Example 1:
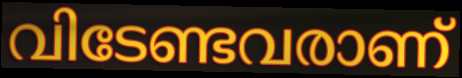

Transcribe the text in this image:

വിടേണ്ടവരാണ്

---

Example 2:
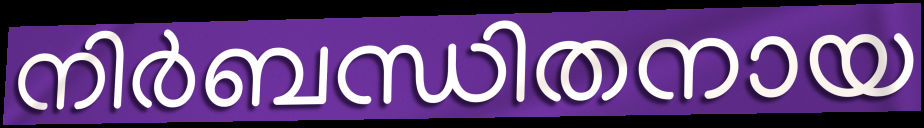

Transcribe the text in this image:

നിർബന്ധിതനായ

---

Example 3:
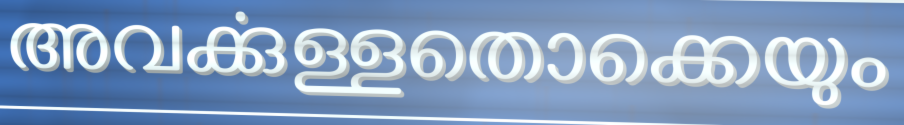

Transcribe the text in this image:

അവൎക്കുള്ളതൊക്കെയും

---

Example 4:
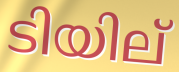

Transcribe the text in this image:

ടിയില്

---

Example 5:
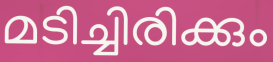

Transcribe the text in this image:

മടിച്ചിരിക്കും